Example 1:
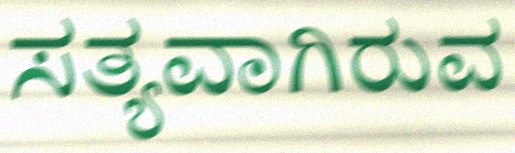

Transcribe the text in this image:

ಸತ್ಯವಾಗಿರುವ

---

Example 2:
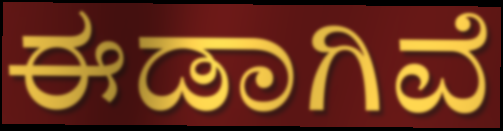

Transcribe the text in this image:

ಈಡಾಗಿವೆ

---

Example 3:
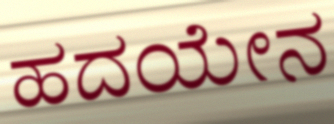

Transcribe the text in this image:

ಹದಯೇನ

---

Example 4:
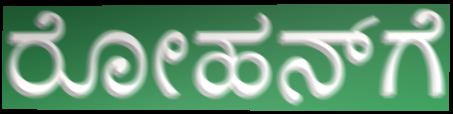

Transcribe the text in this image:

ರೋಹನ್‌ಗೆ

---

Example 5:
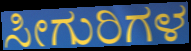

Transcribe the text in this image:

ಸೀಗುರಿಗಳ